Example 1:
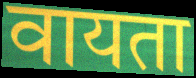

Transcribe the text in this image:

वायता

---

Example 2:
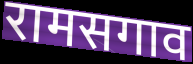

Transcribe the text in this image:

रामसगाव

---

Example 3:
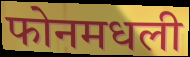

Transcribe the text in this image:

फोनमधली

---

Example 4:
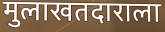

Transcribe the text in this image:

मुलाखतदाराला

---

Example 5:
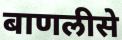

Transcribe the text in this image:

बाणलीसे